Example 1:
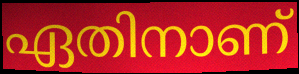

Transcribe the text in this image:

ഏതിനാണ്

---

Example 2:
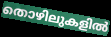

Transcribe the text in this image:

തൊഴിലുകളിൽ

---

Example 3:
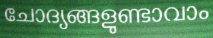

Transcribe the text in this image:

ചോദ്യങ്ങളുണ്ടാവാം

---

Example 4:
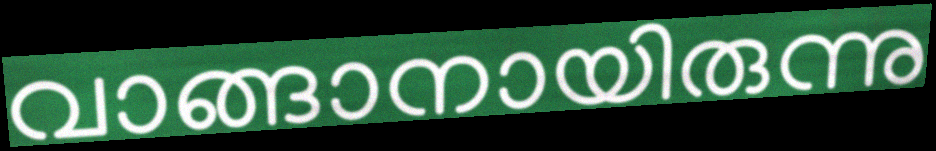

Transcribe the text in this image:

വാങ്ങാനായിരുന്നു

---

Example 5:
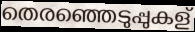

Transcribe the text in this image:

തെരഞ്ഞെടുപ്പുകള്